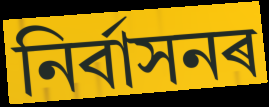
নিৰ্বাসনৰ